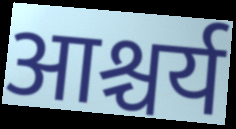
आश्चर्य